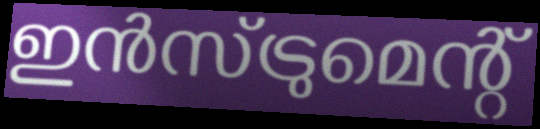
ഇൻസ്ട്രുമെന്റ്